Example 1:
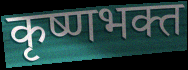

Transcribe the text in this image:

कृष्णभक्त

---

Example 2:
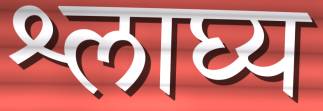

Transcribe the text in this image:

श्लाघ्य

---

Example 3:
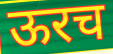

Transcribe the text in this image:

ऊरच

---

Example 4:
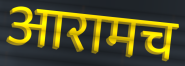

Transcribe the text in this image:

आरामच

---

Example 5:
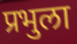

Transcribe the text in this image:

प्रभुला